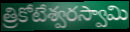
త్రికోటేశ్వరస్వామి